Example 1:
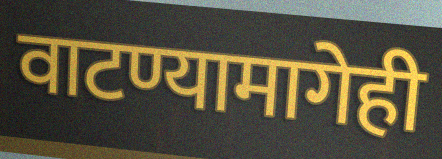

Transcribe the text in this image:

वाटण्यामागेही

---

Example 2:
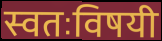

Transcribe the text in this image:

स्वतःविषयी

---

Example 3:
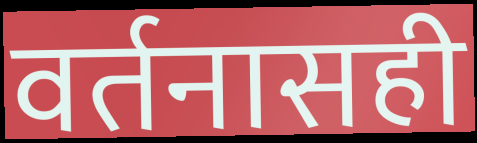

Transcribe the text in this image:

वर्तनासही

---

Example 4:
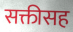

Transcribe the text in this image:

सक्तीसह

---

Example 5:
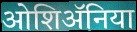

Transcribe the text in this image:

ओशिॲनिया